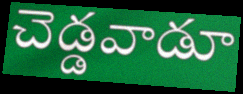
చెడ్డవాడూ